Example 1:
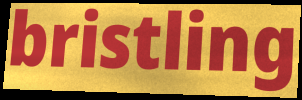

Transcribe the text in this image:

bristling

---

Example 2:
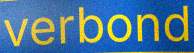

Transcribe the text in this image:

verbond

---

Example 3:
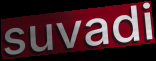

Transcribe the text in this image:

suvadi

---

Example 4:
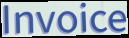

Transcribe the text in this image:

Invoice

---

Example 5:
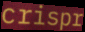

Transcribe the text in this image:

crispr